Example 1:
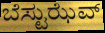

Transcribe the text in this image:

ಬೆಸ್ಟುಝೆವ್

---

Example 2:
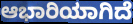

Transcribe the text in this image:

ಆಭಾರಿಯಾಗಿದೆ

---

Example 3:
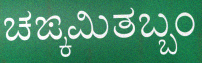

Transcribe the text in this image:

ಚಙ್ಕಮಿತಬ್ಬಂ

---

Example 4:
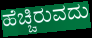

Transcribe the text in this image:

ಹೆಚ್ಚಿರುವದು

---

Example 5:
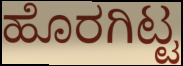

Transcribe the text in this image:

ಹೊರಗಿಟ್ಟ